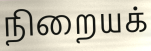
நிறையக்